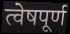
त्वेषपूर्ण